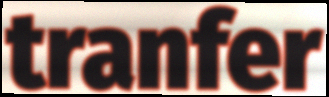
tranfer